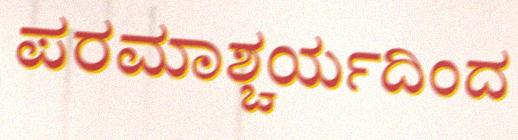
ಪರಮಾಶ್ಚರ್ಯದಿಂದ